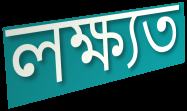
লক্ষ্যত